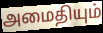
அமைதியும்